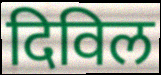
दिविल